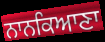
ਨਾਨਕਿਆਣਾ